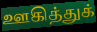
ஊகித்துக்